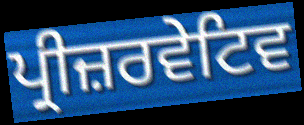
ਪ੍ਰੀਜ਼ਰਵੇਟਿਵ